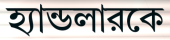
হ্যান্ডলারকে